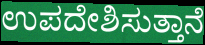
ಉಪದೇಶಿಸುತ್ತಾನೆ